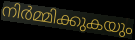
നിർമ്മിക്കുകയും